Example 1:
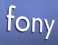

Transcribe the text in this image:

fony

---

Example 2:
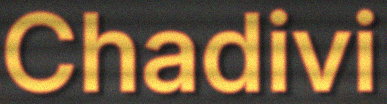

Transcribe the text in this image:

Chadivi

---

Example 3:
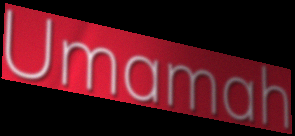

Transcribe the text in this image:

Umamah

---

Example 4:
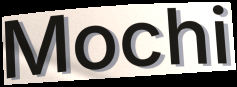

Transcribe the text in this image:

Mochi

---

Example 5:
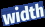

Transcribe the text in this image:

width